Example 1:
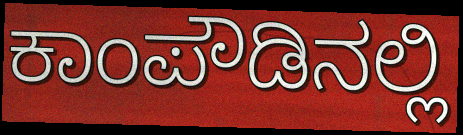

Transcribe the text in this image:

ಕಾಂಪೌಡಿನಲ್ಲಿ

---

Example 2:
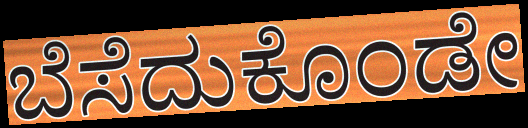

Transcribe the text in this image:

ಬೆಸೆದುಕೊಂಡೇ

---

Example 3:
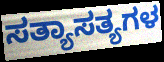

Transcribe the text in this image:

ಸತ್ಯಾಸತ್ಯಗಳ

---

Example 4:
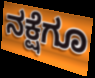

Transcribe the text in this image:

ನಕ್ಷೆಗೂ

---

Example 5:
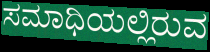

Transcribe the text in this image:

ಸಮಾಧಿಯಲ್ಲಿರುವ